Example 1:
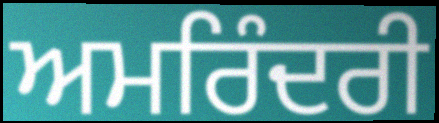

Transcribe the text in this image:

ਅਮਰਿੰਦਰੀ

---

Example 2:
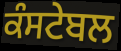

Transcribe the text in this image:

ਕੰਸਟੇਬਲ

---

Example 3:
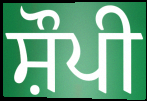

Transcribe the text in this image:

ਸ਼ੌਪੀ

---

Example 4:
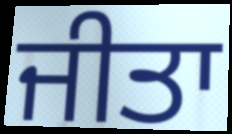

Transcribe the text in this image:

ਜੀਤਾ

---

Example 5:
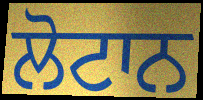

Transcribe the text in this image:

ਲੋਟਾਨ